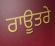
ਰਾਊਤਰੇ